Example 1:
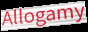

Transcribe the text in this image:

Allogamy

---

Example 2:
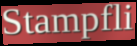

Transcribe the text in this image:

Stampfli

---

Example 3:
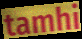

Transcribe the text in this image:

tamhi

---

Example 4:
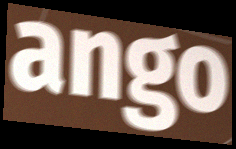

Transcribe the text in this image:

ango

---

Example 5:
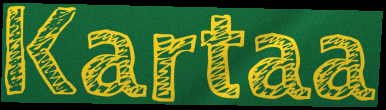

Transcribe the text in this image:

Kartaa